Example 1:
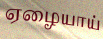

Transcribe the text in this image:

ஏழையாய்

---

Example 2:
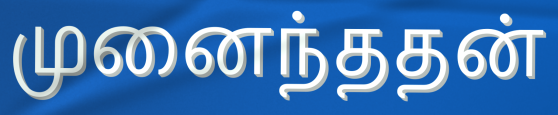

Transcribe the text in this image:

முனைந்ததன்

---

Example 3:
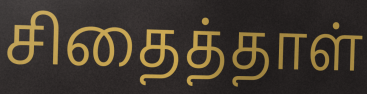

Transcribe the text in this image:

சிதைத்தாள்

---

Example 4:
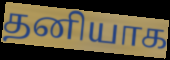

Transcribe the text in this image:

தனியாக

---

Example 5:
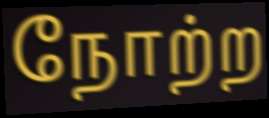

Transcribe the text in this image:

நோற்ற